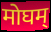
मोघम्